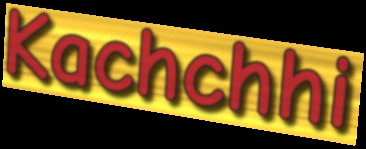
Kachchhi